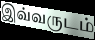
இவ்வருடம்